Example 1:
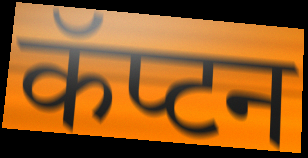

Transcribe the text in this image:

कॅप्टन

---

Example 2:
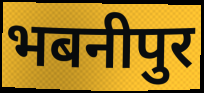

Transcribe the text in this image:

भबनीपुर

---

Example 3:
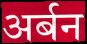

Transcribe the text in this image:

अर्बन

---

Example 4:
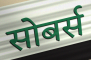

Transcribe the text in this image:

सोबर्स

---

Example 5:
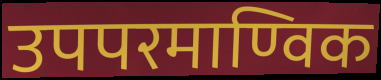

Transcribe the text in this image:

उपपरमाण्विक